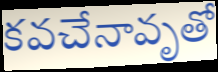
కవచేనావృతో